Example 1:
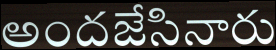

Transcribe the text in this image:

అందజేసినారు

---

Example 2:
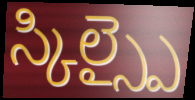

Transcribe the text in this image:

స్కిల్స్పై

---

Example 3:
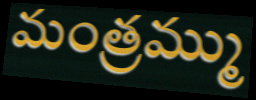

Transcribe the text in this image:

మంత్రమ్ము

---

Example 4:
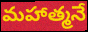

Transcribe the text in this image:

మహాత్మనే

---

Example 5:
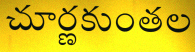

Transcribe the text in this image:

చూర్ణకుంతల